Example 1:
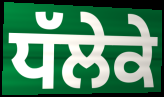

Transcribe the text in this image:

ਧੱਲੇਕੇ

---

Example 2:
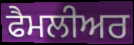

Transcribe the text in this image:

ਫੈਮਲੀਅਰ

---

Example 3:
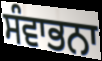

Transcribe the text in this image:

ਸੰਵਾਭਨਾ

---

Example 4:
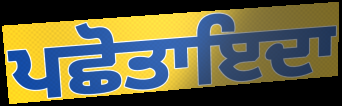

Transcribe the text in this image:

ਪਛੋਤਾਇਦਾ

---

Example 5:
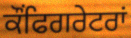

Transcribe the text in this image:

ਕੌਂਫਿਗਰੇਟਰਾਂ